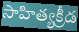
సాహిత్యక్రీడ